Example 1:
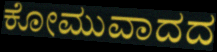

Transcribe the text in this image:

ಕೋಮುವಾದದ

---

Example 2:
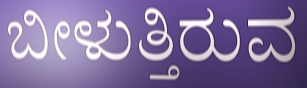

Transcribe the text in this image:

ಬೀಳುತ್ತಿರುವ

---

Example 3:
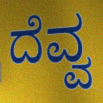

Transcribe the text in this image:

ದೆವ್ವ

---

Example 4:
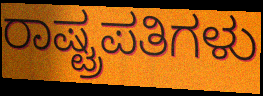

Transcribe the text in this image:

ರಾಷ್ಟ್ರಪತಿಗಳು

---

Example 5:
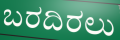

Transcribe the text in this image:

ಬರದಿರಲು